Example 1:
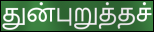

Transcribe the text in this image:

துன்புறுத்தச்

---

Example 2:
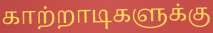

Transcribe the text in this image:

காற்றாடிகளுக்கு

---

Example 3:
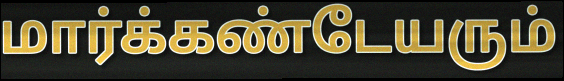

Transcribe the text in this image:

மார்க்கண்டேயரும்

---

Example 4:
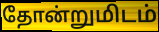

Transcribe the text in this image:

தோன்றுமிடம்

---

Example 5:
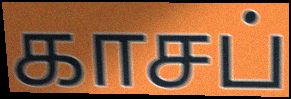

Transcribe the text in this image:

காசப்